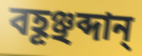
বহূঞ্ছব্দান্